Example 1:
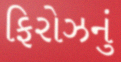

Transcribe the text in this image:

ફિરોઝનું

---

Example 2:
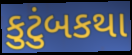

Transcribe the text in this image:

કુટુંબકથા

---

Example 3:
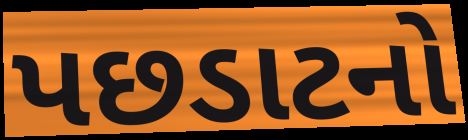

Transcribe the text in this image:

પછડાટનો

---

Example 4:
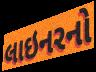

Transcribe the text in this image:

લાઇનરનો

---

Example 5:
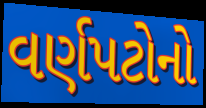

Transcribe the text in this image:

વર્ણપટોનો